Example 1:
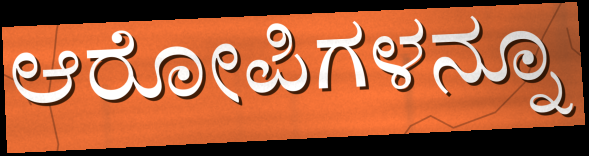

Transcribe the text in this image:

ಆರೋಪಿಗಳನ್ನೂ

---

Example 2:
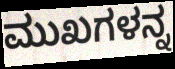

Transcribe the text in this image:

ಮುಖಗಳನ್ನ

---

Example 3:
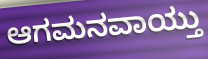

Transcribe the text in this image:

ಆಗಮನವಾಯ್ತು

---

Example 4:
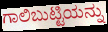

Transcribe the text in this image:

ಗಾಲಿಬುಟ್ಟಿಯನ್ನು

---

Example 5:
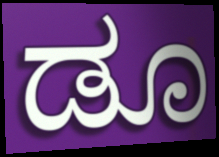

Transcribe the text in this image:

ಡೂ